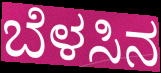
ಬೆಳಸಿನ